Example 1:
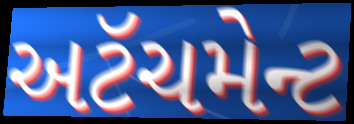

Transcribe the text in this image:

અટૅચમેન્ટ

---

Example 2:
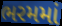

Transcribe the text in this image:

ભરમમાં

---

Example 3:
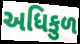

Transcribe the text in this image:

અધિકુળ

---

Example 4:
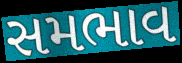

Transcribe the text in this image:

સમભાવ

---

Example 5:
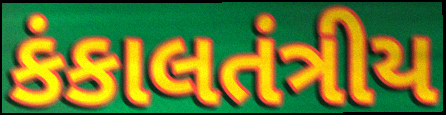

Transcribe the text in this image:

કંકાલતંત્રીય